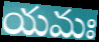
యమః